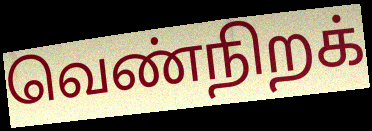
வெண்நிறக்